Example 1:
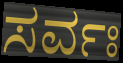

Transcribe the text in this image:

ಸರ್ವಃ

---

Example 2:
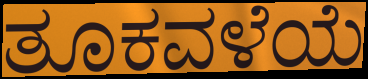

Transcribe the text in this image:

ತೂಕವಳೆಯೆ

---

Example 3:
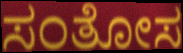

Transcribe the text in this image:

ಸಂತೋಸ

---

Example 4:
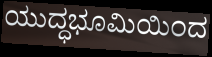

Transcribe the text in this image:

ಯುದ್ಧಭೂಮಿಯಿಂದ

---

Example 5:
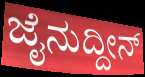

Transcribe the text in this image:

ಜೈನುದ್ದೀನ್